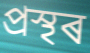
প্ৰস্থৰ